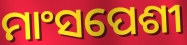
ମାଂସପେଶୀ